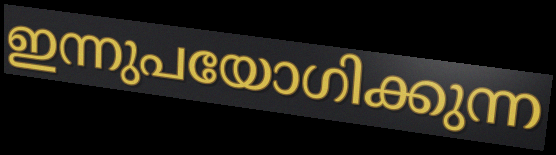
ഇന്നുപയോഗിക്കുന്ന